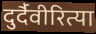
दुर्दैवीरित्या